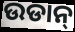
ଉଡାନ୍